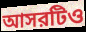
আসরটিও